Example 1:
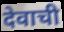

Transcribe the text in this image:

देवाची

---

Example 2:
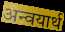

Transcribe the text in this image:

अन्वयार्थ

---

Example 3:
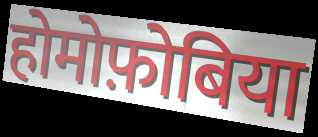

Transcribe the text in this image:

होमोफ़ोबिया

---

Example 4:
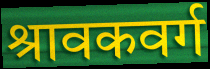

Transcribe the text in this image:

श्रावकवर्ग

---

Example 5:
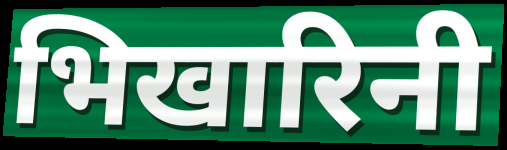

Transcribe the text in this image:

भिखारिनी